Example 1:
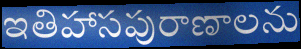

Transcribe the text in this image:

ఇతిహాసపురాణాలను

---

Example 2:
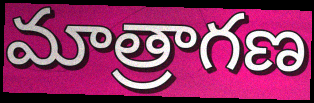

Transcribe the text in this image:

మాత్రాగణ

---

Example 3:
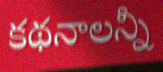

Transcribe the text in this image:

కథనాలన్నీ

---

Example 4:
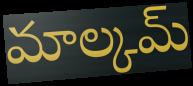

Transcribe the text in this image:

మాల్కమ్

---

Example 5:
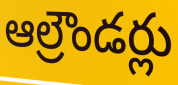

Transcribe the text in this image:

ఆల్రౌండర్లు